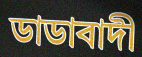
ডাডাবাদী